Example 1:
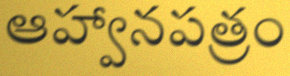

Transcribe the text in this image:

ఆహ్వానపత్రం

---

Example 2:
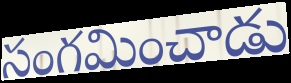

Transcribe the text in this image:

సంగమించాడు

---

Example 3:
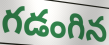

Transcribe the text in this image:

గడంగిన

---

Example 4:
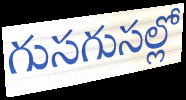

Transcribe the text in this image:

గుసగుసల్లో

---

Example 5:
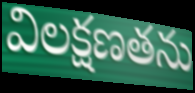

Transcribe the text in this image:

విలక్షణతను